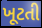
ખૂટતી